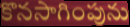
కొనసాగింపును